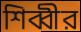
শিব্বীর